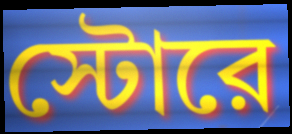
স্টোরে